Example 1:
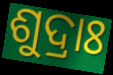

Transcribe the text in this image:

ଶୁଦ୍ରାଃ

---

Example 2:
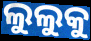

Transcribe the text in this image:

ଲୁଲୁକୁ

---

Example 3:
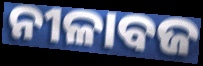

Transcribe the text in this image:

ନୀଳାବଜ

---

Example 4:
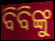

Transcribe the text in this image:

ବିବିଙ୍କୁ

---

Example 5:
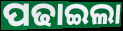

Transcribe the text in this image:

ପଢାଇଲା